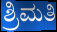
ಶ್ರಿಮತಿ